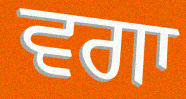
ਵਗਾ